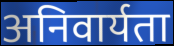
अनिवार्यता